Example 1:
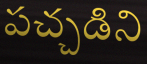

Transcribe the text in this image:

పచ్చడిని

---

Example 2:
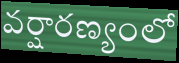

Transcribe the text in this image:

వర్షారణ్యంలో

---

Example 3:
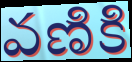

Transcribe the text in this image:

వణికి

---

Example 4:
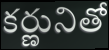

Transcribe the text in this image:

కర్ణునితో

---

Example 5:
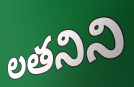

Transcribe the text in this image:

లతనిని